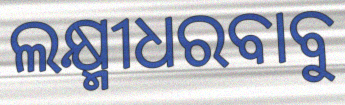
ଲକ୍ଷ୍ମୀଧରବାବୁ